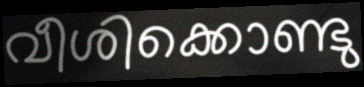
വീശിക്കൊണ്ടു